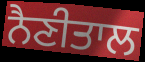
ਨੈਣੀਤਾਲ